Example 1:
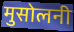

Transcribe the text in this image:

मुसोलनी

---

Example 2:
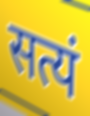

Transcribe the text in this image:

सत्यं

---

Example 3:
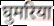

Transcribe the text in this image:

घुमरिया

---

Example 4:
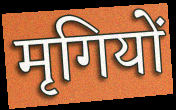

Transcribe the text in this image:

मृगियों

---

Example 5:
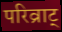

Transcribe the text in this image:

परिव्राट्